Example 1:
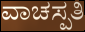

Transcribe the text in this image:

ವಾಚಸ್ಪತಿ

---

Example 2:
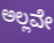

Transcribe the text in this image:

ಅಲ್ಲವೇ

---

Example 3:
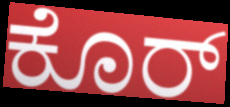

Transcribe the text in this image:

ಕೊರ್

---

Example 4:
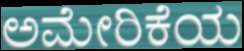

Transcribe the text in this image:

ಅಮೇರಿಕೆಯ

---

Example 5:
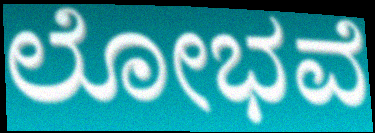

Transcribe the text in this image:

ಲೋಭವೆ